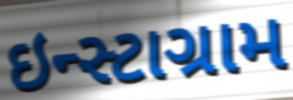
ઇન્સ્ટાગ્રામ